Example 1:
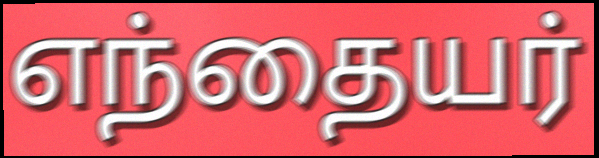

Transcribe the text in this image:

எந்தையர்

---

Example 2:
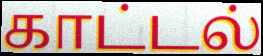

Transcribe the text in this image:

காட்டல்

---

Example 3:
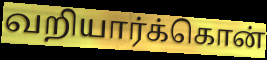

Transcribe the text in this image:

வறியார்க்கொன்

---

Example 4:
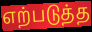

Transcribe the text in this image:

எற்படுத்த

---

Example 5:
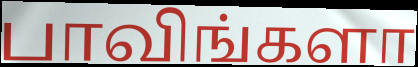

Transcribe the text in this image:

பாவிங்களா